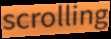
scrolling